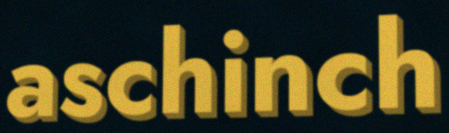
aschinch